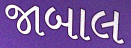
જાબાલ